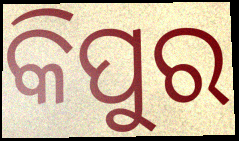
କିପୁର